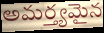
అమర్త్యమైన